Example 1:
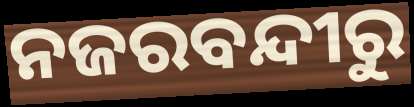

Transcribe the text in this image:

ନଜରବନ୍ଦୀରୁ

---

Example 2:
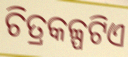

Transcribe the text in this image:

ଚିତ୍ରକଳ୍ପଟିଏ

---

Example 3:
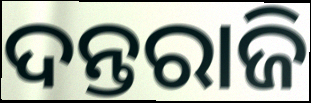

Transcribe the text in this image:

ଦନ୍ତରାଜି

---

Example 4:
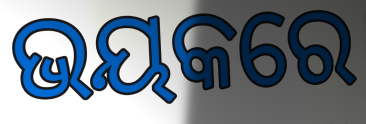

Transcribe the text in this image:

ଭୟକରେ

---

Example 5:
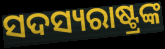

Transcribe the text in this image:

ସଦସ୍ୟରାଷ୍ଟ୍ରଙ୍କ